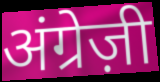
अंग्रेज़ी